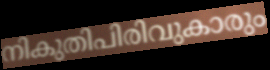
നികുതിപിരിവുകാരും